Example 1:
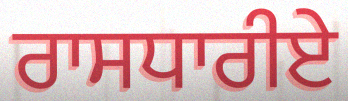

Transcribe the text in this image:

ਰਾਸਧਾਰੀਏ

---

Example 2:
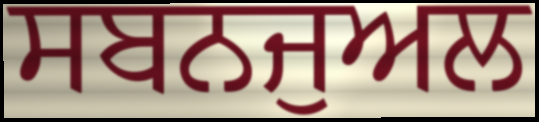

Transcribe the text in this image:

ਸਬਨਜੁਅਲ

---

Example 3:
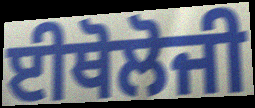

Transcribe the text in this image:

ਈਥੋਲੋਜੀ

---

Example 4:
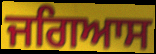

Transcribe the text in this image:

ਜਗਿਆਸ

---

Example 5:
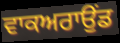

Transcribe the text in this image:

ਵਾਕਅਰਾਉਂਡ